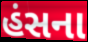
હંસના